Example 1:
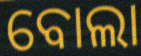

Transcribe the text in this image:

ବୋଲା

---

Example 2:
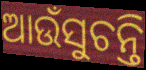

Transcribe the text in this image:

ଆଉଁସୁଚନ୍ତି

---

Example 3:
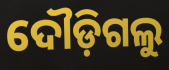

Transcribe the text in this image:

ଦୌଡ଼ିଗଲୁ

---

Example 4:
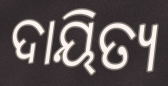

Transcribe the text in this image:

ଦାୟିତ୍ୟ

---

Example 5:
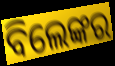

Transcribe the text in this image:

ବିଲେଙ୍କର